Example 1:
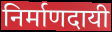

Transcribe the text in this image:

निर्माणदायी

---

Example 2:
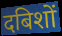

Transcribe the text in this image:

दबिशों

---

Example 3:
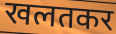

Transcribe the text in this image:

खलतकर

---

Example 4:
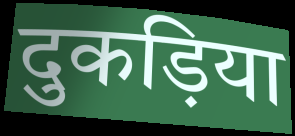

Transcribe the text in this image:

दुकड़िया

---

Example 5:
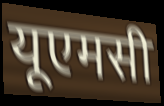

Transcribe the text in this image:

यूएमसी